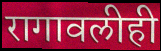
रागावलीही